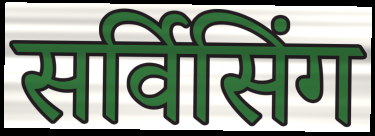
सर्विसिंग